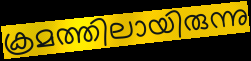
ക്രമത്തിലായിരുന്നു